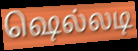
ஷெல்லடி